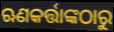
ଋଣକର୍ତ୍ତାଙ୍କଠାରୁ